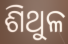
ଶିଥୁଳ